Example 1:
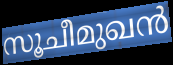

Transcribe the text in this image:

സൂചീമുഖൻ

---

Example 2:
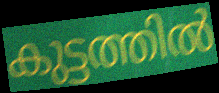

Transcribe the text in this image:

കുട്ടത്തിൽ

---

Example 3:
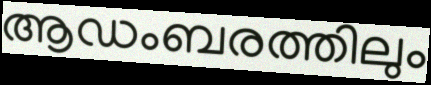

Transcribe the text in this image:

ആഡംബരത്തിലും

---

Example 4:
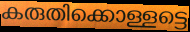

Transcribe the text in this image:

കരുതിക്കൊള്ളട്ടെ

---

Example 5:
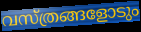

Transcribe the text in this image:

വസ്ത്രങ്ങളോടും